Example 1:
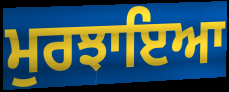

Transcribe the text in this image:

ਮੁਰਝਾਇਆ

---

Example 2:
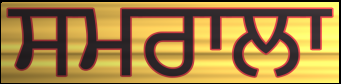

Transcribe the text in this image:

ਸਮਰਾਲਾ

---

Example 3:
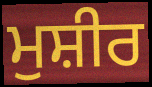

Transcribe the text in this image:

ਮੁਸ਼ੀਰ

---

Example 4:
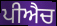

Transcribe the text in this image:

ਪੀਐਚ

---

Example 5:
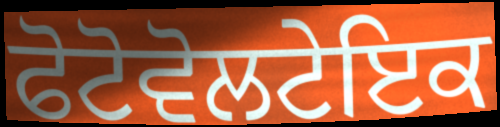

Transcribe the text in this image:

ਫੋਟੋਵੋਲਟੇਇਕ